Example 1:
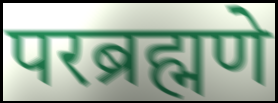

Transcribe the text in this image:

परब्रह्मणे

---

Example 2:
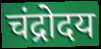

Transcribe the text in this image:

चंद्रोदय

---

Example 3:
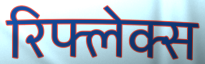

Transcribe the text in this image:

रिफ्लेक्स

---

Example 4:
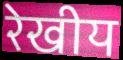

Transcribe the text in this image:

रेखीय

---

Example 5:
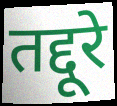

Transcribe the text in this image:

तद्दूरे